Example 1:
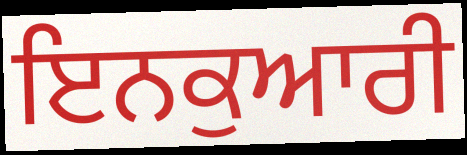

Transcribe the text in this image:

ਇਨਕੁਆਰੀ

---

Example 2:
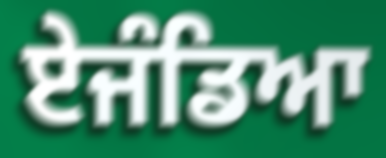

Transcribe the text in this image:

ਏਜੰਡਿਆ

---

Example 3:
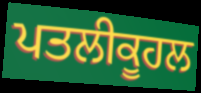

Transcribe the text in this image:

ਪਤਲੀਕੂਹਲ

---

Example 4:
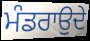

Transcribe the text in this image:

ਮੰਡਰਾਉਦੇ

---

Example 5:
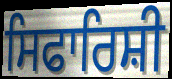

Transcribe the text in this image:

ਸਿਫਾਰਿਸ਼ੀ